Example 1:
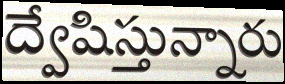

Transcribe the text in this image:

ద్వేషిస్తున్నారు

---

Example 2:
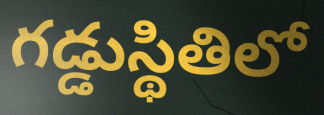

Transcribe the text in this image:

గడ్డుస్థితిలో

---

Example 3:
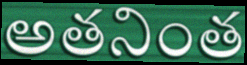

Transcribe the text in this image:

అతనింత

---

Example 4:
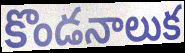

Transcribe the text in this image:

కొండనాలుక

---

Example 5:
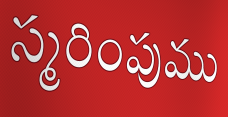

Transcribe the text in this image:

స్మరింపుము